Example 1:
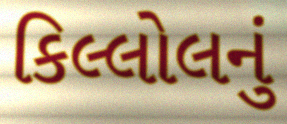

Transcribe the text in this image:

કિલ્લોલનું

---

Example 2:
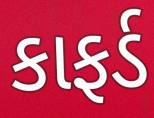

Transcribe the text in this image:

કાફર્ડ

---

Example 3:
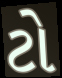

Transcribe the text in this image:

ટો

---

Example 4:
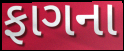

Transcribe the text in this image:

ફાગના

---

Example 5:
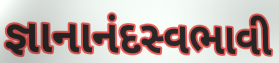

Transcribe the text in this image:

જ્ઞાનાનંદસ્વભાવી